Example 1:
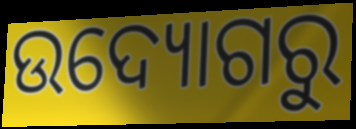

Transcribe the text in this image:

ଉଦ୍ୟୋଗରୁ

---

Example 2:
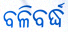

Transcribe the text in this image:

ବଳିବର୍ଦ୍ଧ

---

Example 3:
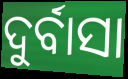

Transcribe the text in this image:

ଦୁର୍ବାସା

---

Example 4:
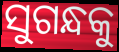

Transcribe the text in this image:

ସୁଗନ୍ଧକୁ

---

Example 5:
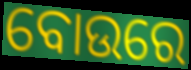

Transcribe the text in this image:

ବୋଉରେ